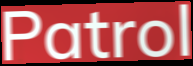
Patrol